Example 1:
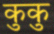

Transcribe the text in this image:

कुकु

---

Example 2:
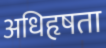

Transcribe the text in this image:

अधिहृषता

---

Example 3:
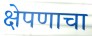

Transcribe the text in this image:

क्षेपणाचा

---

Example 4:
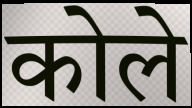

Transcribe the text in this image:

कोले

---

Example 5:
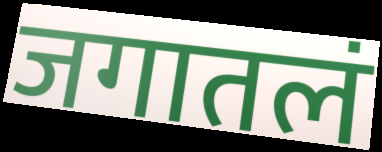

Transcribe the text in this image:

जगातलं